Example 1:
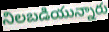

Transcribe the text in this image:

నిలబడియున్నారు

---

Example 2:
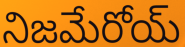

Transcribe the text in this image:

నిజమేరోయ్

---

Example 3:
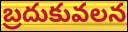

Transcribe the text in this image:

బ్రదుకువలన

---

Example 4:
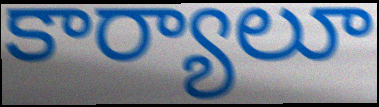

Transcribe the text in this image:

కార్యాలూ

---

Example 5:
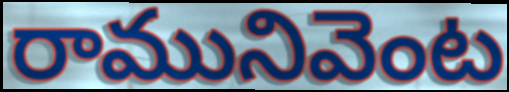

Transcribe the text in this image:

రామునివెంట